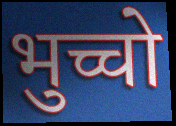
भुच्चो